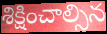
శిక్షించాల్సిన